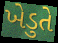
ખેડુતે